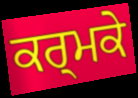
ਕਰ੍ਮਕੇ